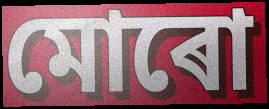
মোৰো